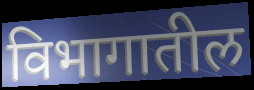
विभागातील